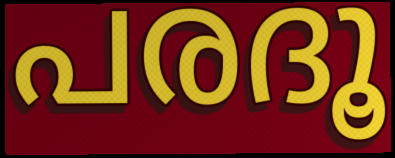
പരദൂ